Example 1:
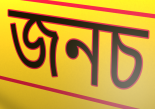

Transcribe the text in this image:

জনচ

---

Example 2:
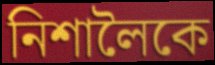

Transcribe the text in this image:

নিশালৈকে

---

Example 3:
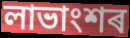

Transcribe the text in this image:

লাভাংশৰ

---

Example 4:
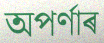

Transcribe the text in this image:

অপৰ্ণাৰ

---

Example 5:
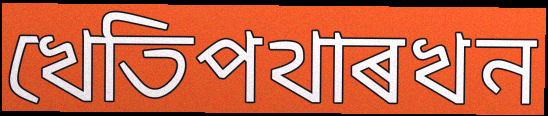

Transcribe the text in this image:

খেতিপথাৰখন